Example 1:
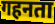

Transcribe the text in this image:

गहनता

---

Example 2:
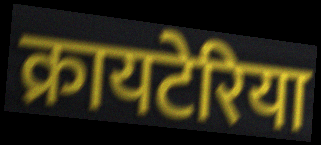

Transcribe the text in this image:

क्रायटेरिया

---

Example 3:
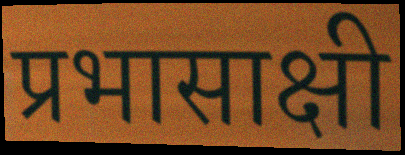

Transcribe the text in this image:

प्रभासाक्षी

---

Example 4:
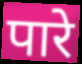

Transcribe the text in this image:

पारे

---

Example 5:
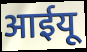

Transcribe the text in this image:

आईयू